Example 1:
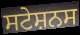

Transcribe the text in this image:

ਸਟੇਸ਼ਨਸ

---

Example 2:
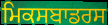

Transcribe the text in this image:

ਮਿਕਸਬਾਡਰਸ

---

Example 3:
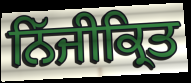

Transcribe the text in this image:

ਨਿੱਜੀਕ੍ਰਿਤ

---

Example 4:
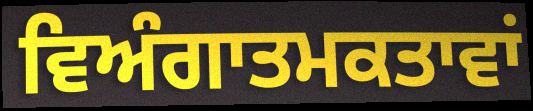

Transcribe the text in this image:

ਵਿਅੰਗਾਤਮਕਤਾਵਾਂ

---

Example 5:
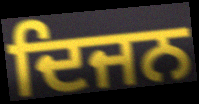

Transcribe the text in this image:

ਦਿਜਨ